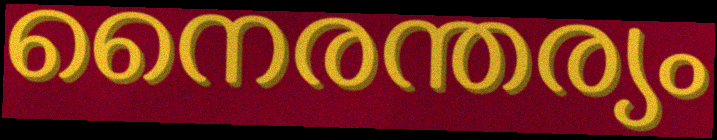
നൈരന്തര്യം